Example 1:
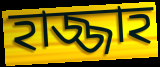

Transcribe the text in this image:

হাজ্জাহ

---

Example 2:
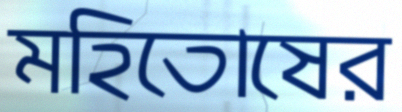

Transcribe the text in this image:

মহিতোষের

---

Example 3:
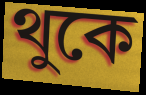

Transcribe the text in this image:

থুকে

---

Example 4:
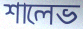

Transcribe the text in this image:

শালেভ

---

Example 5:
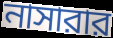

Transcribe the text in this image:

নাসারার